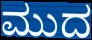
ಮುದ